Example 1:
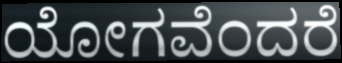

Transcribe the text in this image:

ಯೋಗವೆಂದರೆ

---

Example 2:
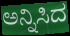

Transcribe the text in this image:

ಅನ್ನಿಸಿದ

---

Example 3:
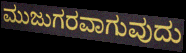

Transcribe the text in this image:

ಮುಜುಗರವಾಗುವುದು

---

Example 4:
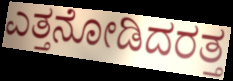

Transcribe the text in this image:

ಎತ್ತನೋಡಿದರತ್ತ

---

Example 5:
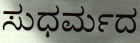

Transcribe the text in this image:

ಸುಧರ್ಮದ